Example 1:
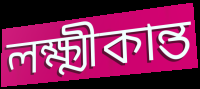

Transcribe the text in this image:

লক্ষ্মীকান্ত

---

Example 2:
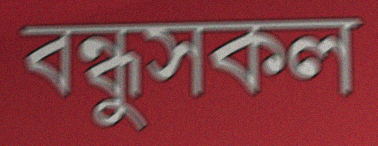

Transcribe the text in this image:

বন্ধুসকল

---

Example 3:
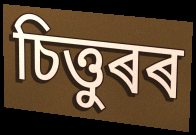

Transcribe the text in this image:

চিত্তুৰৰ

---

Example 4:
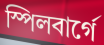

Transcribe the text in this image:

স্পিলবাৰ্গে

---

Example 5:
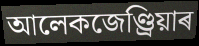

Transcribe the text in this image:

আলেকজেণ্ড্ৰিয়াৰ